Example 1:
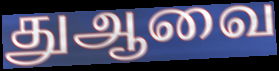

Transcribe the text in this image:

துஆவை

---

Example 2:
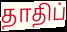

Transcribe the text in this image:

தாதிப்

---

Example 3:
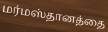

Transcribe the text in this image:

மர்மஸ்தானத்தை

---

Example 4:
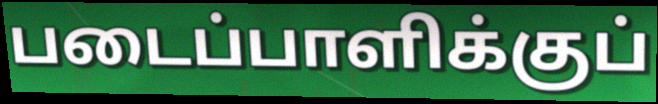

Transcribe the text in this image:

படைப்பாளிக்குப்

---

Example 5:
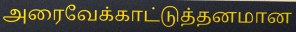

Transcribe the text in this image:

அரைவேக்காட்டுத்தனமான